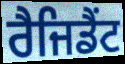
ਰੈਜਿਡੈਂਟ